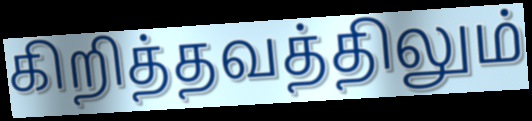
கிறித்தவத்திலும்